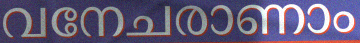
വനേചരാണാം